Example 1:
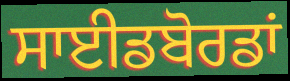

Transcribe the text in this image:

ਸਾਈਡਬੋਰਡਾਂ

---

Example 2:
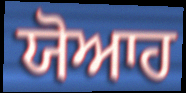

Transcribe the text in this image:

ਯੋਆਹ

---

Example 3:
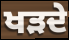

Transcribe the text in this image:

ਖੜਦੇ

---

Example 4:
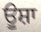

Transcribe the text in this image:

ਊਸ਼ਾ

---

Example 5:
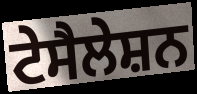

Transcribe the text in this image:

ਟੇਸੈਲੇਸ਼ਨ